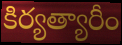
కిర్యత్యారీం